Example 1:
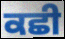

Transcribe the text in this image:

ਕਛੀ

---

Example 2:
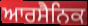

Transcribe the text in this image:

ਆਰਸੈਨਿਕ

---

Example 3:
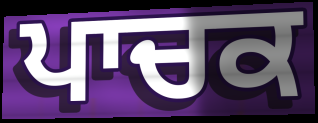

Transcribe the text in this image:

ਪਾਚਕ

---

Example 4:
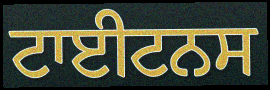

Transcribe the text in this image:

ਟਾਈਟਨਸ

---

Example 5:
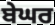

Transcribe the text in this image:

ਬੇਘਰ